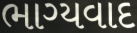
ભાગ્યવાદ